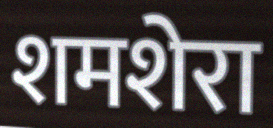
शमशेरा